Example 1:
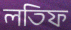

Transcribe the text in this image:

লতিফ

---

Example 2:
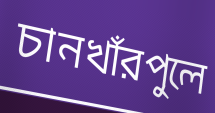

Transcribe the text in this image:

চানখাঁরপুলে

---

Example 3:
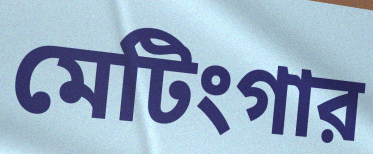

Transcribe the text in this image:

মেটিংগার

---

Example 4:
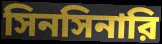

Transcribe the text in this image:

সিনসিনারি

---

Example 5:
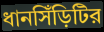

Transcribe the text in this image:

ধানসিঁড়িটির